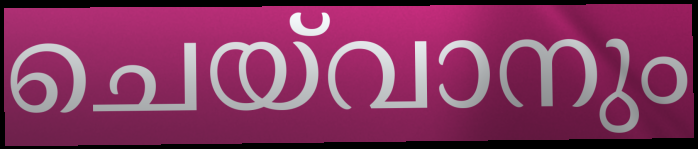
ചെയ്‌വാനും